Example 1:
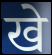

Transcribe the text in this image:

खे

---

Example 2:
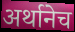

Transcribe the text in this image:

अर्थानेच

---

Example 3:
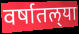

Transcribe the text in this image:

वर्षातल्या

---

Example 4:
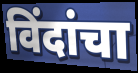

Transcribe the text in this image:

विंदांचा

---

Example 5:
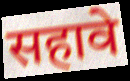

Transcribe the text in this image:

सहावे